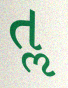
તૢ